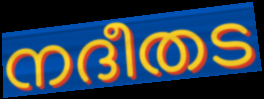
നദീതട